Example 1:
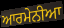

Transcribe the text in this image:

ਆਰਮੇਨੀਆ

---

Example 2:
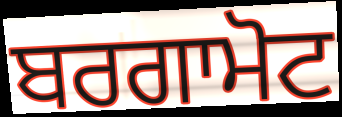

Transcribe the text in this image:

ਬਰਗਾਮੋਟ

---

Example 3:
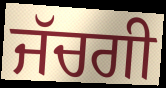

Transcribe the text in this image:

ਜੱਚਗੀ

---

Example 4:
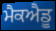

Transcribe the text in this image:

ਮੈਕਐਡੂ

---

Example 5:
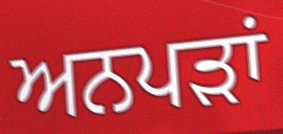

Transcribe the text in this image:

ਅਨਪੜਾਂ